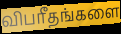
விபரீதங்களை